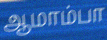
ஆமாம்பா